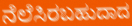
ನೆಲೆಸಿರಬಹುದಾದ